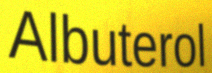
Albuterol